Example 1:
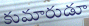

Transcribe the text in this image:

కుమారుడూ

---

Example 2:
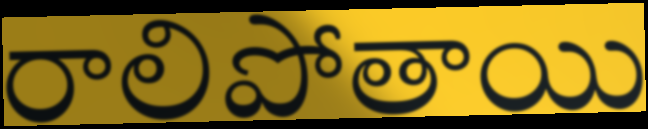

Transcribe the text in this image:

రాలిపోతాయి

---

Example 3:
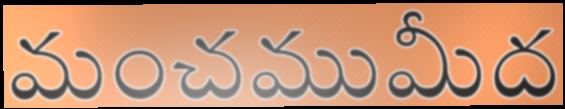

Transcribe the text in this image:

మంచముమీద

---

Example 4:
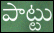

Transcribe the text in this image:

పాట్టు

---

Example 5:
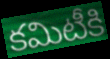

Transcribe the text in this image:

కమిటీకి